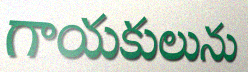
గాయకులును